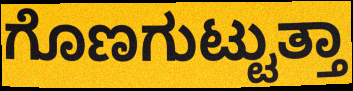
ಗೊಣಗುಟ್ಟುತ್ತಾ